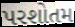
પરશોતમ